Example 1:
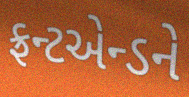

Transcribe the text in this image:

ફ્રન્ટએન્ડને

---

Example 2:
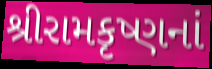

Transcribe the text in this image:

શ્રીરામકૃષ્ણનાં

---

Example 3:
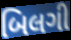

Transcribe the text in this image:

બિલગી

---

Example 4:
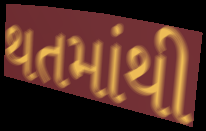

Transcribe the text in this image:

થતમાંથી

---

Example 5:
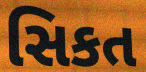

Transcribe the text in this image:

સિકત